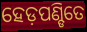
ହେଡ଼ପଣ୍ଡିତେ